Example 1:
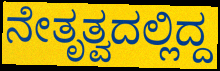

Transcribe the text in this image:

ನೇತೃತ್ವದಲ್ಲಿದ್ದ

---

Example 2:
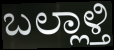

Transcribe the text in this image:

ಬಲ್ಲಾಳ್ತಿ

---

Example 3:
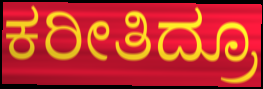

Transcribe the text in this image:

ಕರೀತಿದ್ರೂ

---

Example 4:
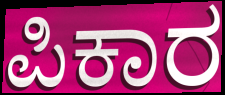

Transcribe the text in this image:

ಪಿಕಾರ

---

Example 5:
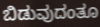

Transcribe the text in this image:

ಬಿಡುವುದಂತೂ